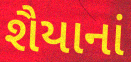
શૈયાનાં